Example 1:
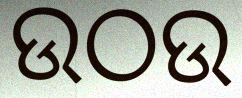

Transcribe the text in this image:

ଉଠଉ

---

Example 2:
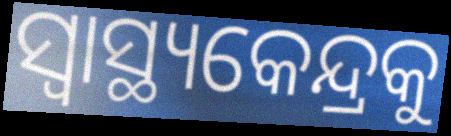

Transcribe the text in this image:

ସ୍ୱାସ୍ଥ୍ୟକେନ୍ଦ୍ରକୁ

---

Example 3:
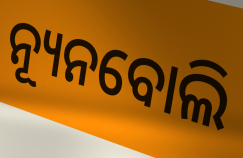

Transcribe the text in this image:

ନ୍ୟୂନବୋଲି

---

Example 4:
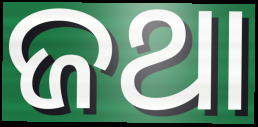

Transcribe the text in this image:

ଜଥା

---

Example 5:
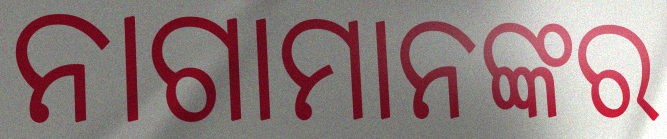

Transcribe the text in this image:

ନାଗାମାନଙ୍କର